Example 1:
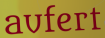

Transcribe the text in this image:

aufert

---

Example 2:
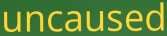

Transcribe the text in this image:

uncaused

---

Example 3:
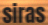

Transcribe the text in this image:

siras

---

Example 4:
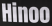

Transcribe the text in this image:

Hinoo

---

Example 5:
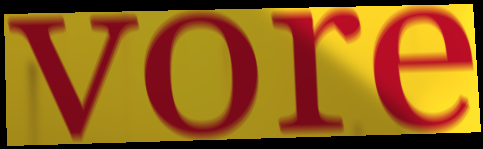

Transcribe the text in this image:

vore